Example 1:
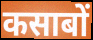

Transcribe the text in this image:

कसाबों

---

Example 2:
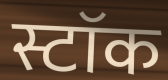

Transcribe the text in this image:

स्‍टॉक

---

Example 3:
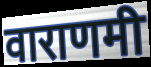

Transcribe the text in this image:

वाराणमी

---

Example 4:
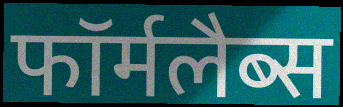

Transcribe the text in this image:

फॉर्मलैब्स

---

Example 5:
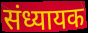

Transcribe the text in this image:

संध्यायक